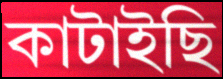
কাটাইছি